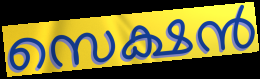
സെക്ഷൻ